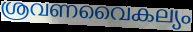
ശ്രവണവൈകല്യം